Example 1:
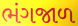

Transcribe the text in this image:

ભંગજાળ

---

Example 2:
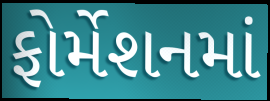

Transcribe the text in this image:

ફોર્મેશનમાં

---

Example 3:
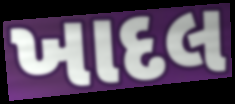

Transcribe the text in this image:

ખાદલ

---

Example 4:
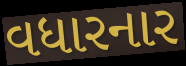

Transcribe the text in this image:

વધારનાર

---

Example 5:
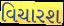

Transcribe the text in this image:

વિચારશ